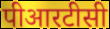
पीआरटीसी